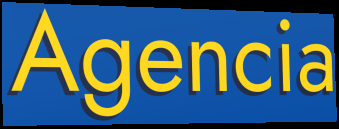
Agencia